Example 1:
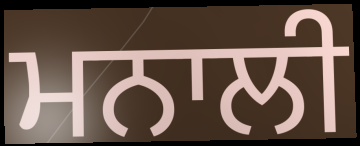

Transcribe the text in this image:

ਮਨਾਲੀ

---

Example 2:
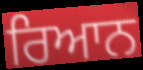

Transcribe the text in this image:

ਰਿਆਨ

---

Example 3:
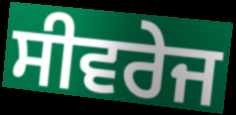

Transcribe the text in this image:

ਸੀਵਰੇਜ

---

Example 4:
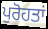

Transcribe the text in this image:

ਪੁਰੋਹਤਾਂ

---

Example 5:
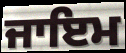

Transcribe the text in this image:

ਜਾਇਮ